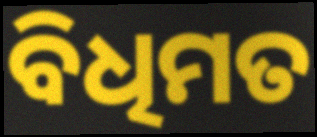
ବିଧିମତ